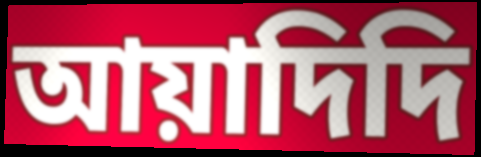
আয়াদিদি